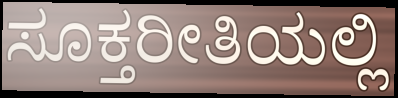
ಸೂಕ್ತರೀತಿಯಲ್ಲಿ